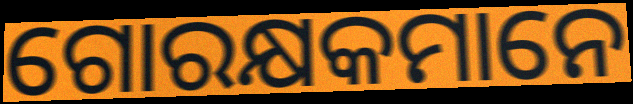
ଗୋରକ୍ଷକମାନେ